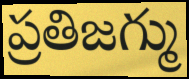
ప్రతిజగ్ము